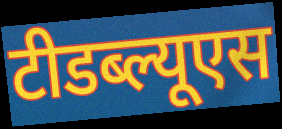
टीडब्ल्यूएस